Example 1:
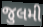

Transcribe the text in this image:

જુલમી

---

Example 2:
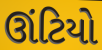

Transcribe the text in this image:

ઊંટિયો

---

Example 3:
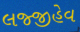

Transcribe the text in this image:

લજ્જીહેવ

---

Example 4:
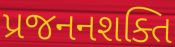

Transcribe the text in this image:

પ્રજનનશક્તિ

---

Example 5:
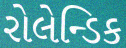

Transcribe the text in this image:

રોલેન્ડિક